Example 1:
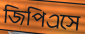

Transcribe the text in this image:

জিপিএসে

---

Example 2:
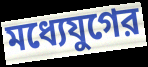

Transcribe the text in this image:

মধ্যেযুগের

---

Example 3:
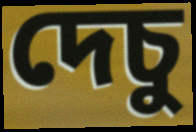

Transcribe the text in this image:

দেচু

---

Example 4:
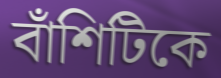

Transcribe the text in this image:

বাঁশিটিকে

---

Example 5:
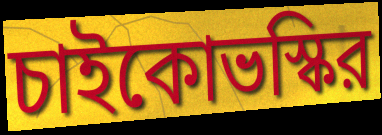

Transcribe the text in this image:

চাইকোভস্কির